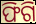
ଫିଗି